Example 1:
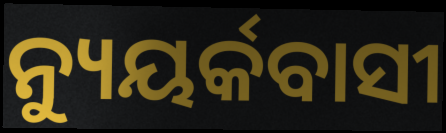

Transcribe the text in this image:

ନ୍ୟୁୟର୍କବାସୀ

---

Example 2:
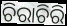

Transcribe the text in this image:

ଚିରାଚିରି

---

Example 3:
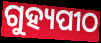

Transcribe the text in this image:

ଗୁହ୍ୟପୀଠ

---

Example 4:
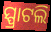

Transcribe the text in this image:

ସ୍ପ୍ରାଟଲି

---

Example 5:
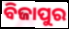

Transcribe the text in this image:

ବିଜାପୁର